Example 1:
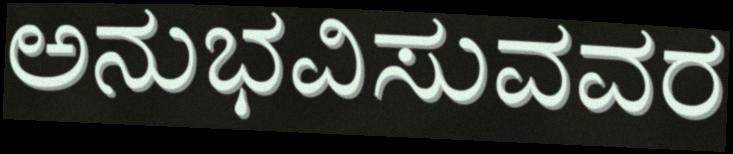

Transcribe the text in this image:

ಅನುಭವಿಸುವವರ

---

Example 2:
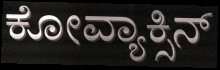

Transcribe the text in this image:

ಕೋವ್ಯಾಕ್ಸಿನ್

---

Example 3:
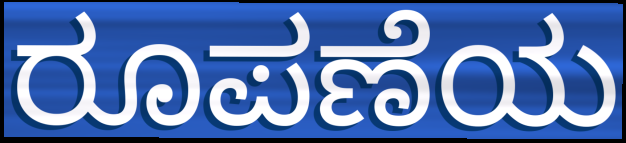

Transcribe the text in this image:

ರೂಪಣೆಯ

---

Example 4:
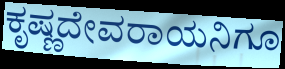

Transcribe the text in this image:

ಕೃಷ್ಣದೇವರಾಯನಿಗೂ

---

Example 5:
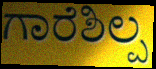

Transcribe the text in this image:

ಗಾರೆಶಿಲ್ಪ